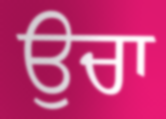
ਉਚਾ